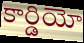
కార్డియో